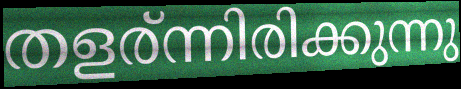
തളര്ന്നിരിക്കുന്നു